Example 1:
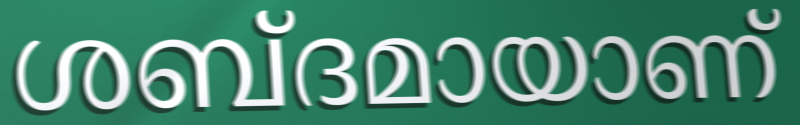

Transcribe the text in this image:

ശബ്ദമായാണ്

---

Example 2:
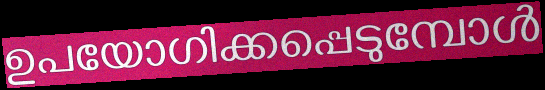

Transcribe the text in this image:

ഉപയോഗിക്കപ്പെടുമ്പോൾ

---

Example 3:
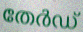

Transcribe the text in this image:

തേർഡ്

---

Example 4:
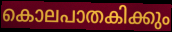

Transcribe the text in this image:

കൊലപാതകിക്കും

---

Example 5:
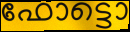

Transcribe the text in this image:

ഫോട്ടൊ